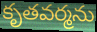
కృతవర్మను